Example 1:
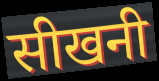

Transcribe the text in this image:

सीखनी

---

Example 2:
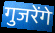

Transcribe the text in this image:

गुजरेंगे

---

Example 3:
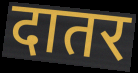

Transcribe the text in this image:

दातर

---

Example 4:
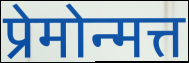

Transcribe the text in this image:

प्रेमोन्मत्त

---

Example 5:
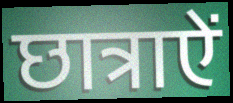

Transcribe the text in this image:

छात्राऐं